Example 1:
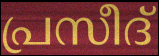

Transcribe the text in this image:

പ്രസീദ്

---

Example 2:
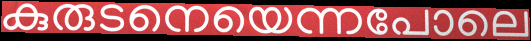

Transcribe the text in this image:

കുരുടനെയെന്നപോലെ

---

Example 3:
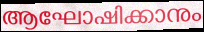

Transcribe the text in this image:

ആഘോഷിക്കാനും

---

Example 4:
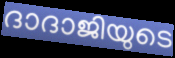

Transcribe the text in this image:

ദാദാജിയുടെ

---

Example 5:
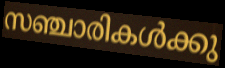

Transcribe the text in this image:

സഞ്ചാരികൾക്കു